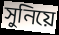
সুনিয়ে